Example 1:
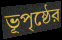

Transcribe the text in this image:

ভূপৃষ্ঠের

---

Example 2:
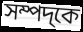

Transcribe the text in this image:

সম্পদ্‌কে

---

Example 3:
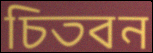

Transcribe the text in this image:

চিতবন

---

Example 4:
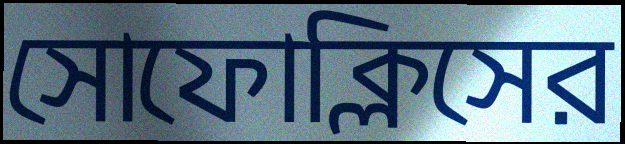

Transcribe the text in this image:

সোফোক্লিসের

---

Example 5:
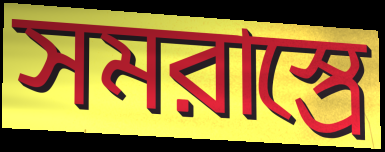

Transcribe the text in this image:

সমরাস্ত্রে